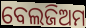
ବେଲଜିଅମ